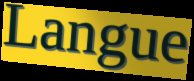
Langue